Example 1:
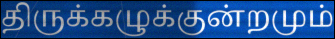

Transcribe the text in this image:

திருக்கழுக்குன்றமும்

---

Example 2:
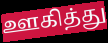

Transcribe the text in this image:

ஊகித்து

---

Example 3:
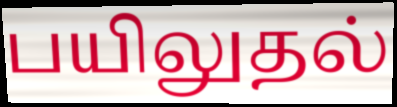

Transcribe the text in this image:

பயிலுதல்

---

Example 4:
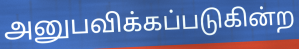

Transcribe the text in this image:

அனுபவிக்கப்படுகின்ற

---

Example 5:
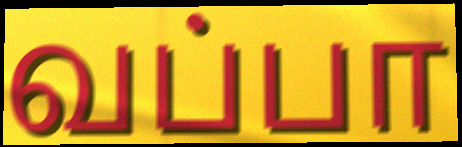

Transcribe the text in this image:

வப்பா